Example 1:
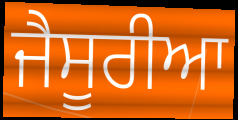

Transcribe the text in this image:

ਜੈਸੂਰੀਆ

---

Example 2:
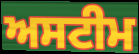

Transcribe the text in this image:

ਅਸਟੀਮ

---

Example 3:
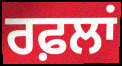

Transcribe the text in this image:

ਰਫ਼ਲਾਂ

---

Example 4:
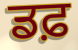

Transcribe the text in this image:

ਡਫ਼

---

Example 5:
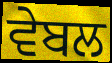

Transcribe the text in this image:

ਵੇਬਲ